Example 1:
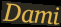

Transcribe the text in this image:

Dami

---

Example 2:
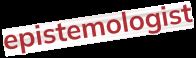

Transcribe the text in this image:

epistemologist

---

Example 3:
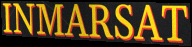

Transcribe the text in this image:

INMARSAT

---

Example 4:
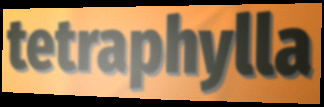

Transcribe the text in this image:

tetraphylla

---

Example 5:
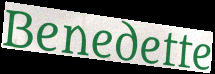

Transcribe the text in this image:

Benedette